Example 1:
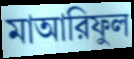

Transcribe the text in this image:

মাআরিফুল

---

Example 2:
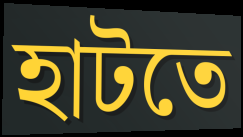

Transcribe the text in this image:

হাটতে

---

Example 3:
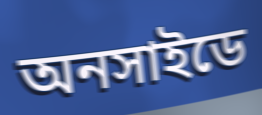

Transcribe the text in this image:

অনসাইডে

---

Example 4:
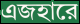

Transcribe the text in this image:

এজহারে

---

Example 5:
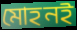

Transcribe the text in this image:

মোহনই